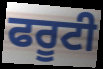
ਫਰੂਟੀ